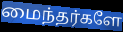
மைந்தர்களே